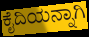
ಕೈದಿಯನ್ನಾಗಿ